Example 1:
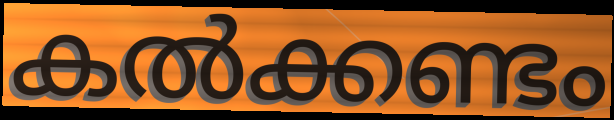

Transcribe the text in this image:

കൽക്കണ്ടം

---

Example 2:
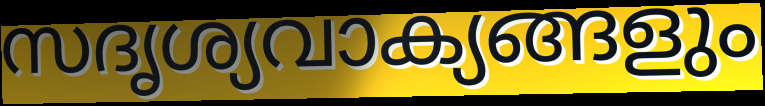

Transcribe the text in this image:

സദൃശ്യവാക്യങ്ങളും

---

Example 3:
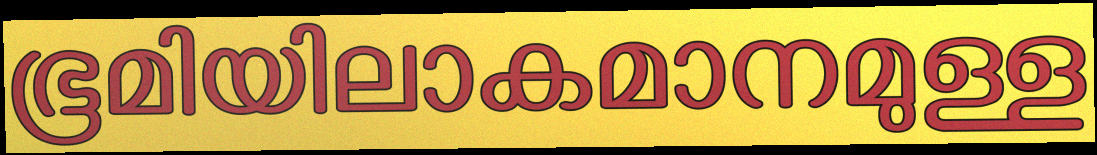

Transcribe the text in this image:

ഭൂമിയിലാകമാനമുള്ള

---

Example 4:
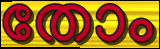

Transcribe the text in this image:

തോം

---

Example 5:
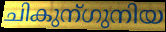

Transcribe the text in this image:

ചികുന്ഗുനിയ